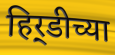
हिर्डीच्या